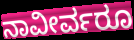
ನಾವೀರ್ವರೂ